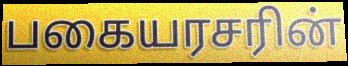
பகையரசரின்